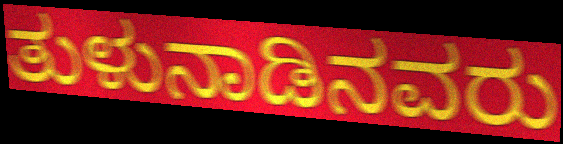
ತುಳುನಾಡಿನವರು